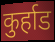
कुर्हाड